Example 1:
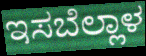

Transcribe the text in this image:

ಇಸಬೆಲ್ಲಾಳ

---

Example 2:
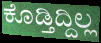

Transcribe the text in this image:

ಕೊಡ್ತಿದ್ದಿಲ್ಲ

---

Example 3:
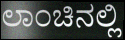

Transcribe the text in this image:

ಲಾಂಚಿನಲ್ಲಿ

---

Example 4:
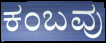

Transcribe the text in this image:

ಕಂಬವು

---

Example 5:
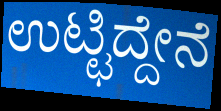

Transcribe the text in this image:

ಉಟ್ಟಿದ್ದೇನೆ